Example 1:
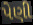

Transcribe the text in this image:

પેણી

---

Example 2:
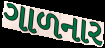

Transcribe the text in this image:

ગાળનાર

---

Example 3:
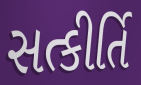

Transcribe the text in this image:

સત્કીર્તિ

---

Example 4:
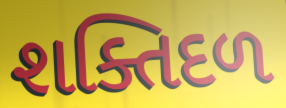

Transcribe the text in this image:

શક્તિદળ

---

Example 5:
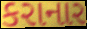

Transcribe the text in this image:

કરાનાર